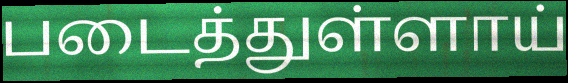
படைத்துள்ளாய்